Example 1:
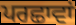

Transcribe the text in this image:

ਪਰਛਾਵਾਂ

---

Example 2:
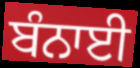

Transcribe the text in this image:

ਬੰਨਾਈ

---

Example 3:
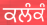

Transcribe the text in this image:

ਕਲੰਕੰ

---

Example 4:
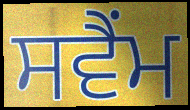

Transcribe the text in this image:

ਸਵੈਂਮ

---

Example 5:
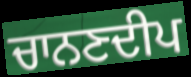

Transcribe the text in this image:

ਚਾਨਣਦੀਪ